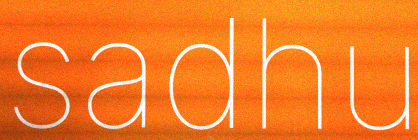
sadhu